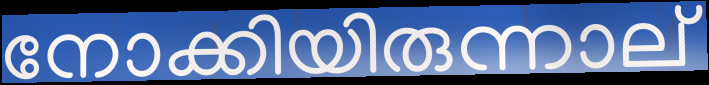
നോക്കിയിരുന്നാല്